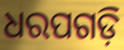
ଧରପଗଡ଼ି